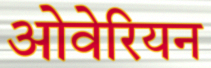
ओवेरियन